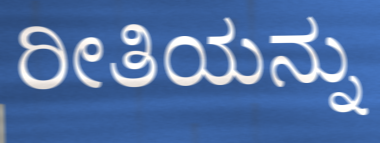
ರೀತಿಯನ್ನು